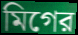
মিগের